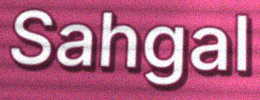
Sahgal